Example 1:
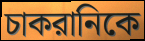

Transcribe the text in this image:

চাকরানিকে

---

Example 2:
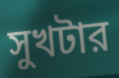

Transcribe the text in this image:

সুখটার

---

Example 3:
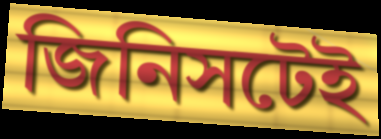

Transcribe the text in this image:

জিনিসটেই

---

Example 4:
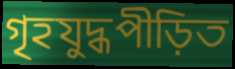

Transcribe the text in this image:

গৃহযুদ্ধপীড়িত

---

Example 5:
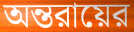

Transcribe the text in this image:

অন্তরায়ের